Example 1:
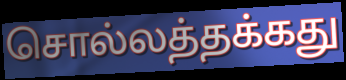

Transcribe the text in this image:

சொல்லத்தக்கது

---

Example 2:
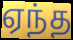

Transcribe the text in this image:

ஏந்த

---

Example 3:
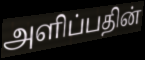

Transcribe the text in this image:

அளிப்பதின்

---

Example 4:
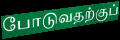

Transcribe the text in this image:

போடுவதற்குப்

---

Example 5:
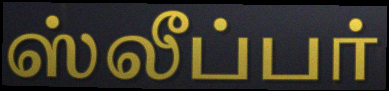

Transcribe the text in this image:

ஸ்லீப்பர்